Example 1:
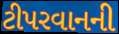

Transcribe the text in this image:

ટીપરવાનની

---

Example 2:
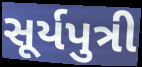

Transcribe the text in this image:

સૂર્યપુત્રી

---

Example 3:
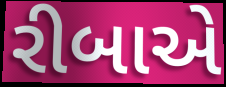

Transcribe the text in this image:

રીબાએ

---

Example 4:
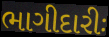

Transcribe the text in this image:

ભાગીદારીઃ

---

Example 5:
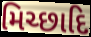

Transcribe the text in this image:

મિચ્છાદિ